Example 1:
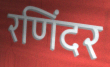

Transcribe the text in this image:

रणिंदर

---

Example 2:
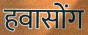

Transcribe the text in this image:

हवासोंग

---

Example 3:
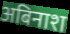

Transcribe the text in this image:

अबिनाश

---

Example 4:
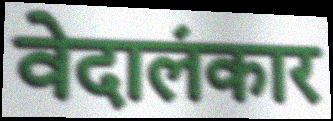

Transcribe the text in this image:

वेदालंकार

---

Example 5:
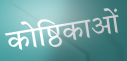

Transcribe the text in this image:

कोष्ठिकाओं